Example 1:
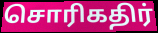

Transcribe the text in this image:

சொரிகதிர்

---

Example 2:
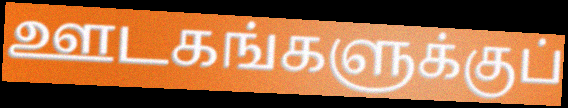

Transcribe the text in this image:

ஊடகங்களுக்குப்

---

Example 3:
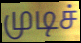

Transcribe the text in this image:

முடிச்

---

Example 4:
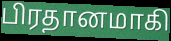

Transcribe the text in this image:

பிரதானமாகி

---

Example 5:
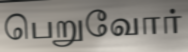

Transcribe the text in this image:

பெறுவோர்